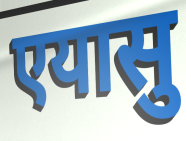
एयासु